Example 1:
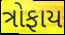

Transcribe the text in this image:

ત્રોફાય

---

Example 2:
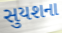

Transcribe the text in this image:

સુયશના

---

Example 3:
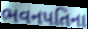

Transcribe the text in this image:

ભવનપતિના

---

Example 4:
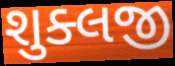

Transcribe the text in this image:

શુક્લજી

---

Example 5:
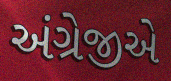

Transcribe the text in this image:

અંગ્રેજીએ